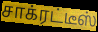
சாக்ரட்டீஸ்